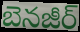
బెనజీర్